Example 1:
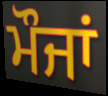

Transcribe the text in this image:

ਮੌਜਾਂ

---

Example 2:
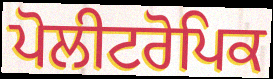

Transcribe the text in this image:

ਪੋਲੀਟਰੋਪਿਕ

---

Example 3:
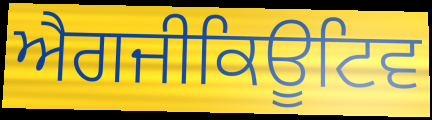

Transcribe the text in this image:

ਐਗਜੀਕਿਊਟਿਵ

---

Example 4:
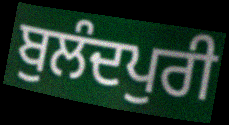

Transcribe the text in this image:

ਬੁਲੰਦਪੁਰੀ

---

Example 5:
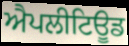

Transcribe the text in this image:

ਐਪਲੀਟਿਊਡ